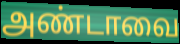
அண்டாவை